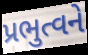
પ્રભુત્વને